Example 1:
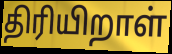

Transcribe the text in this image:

திரியிறாள்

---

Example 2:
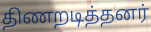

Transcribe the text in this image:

திணறடித்தனர்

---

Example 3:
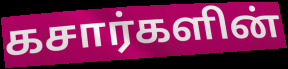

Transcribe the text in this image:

கசார்களின்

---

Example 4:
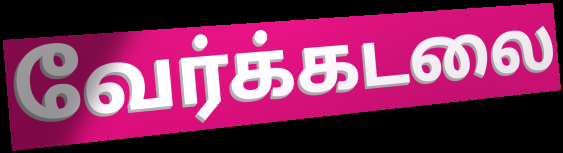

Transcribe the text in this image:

வேர்க்கடலை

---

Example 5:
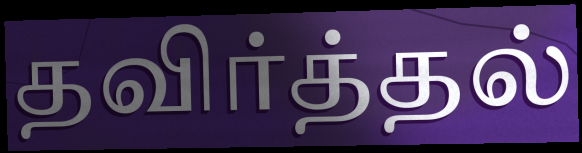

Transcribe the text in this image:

தவிர்த்தல்